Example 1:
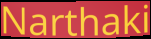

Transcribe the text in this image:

Narthaki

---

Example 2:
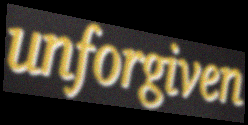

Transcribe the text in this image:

unforgiven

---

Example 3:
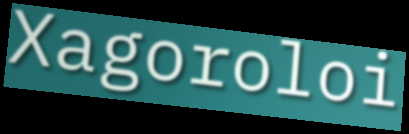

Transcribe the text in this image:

Xagoroloi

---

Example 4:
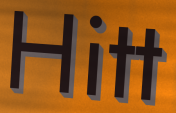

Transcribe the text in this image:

Hitt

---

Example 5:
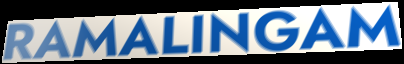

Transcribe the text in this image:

RAMALINGAM